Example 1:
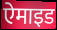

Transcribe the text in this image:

ऐमाइड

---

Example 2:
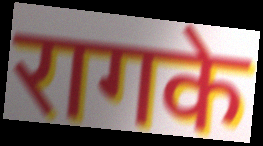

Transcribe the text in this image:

रागके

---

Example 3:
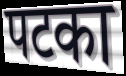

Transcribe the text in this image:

पटका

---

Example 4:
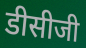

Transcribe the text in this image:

डीसीजी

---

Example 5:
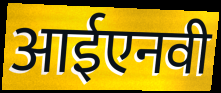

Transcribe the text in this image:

आईएनवी